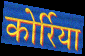
कोर्रिया